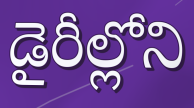
డైరీల్లోని